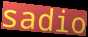
sadio